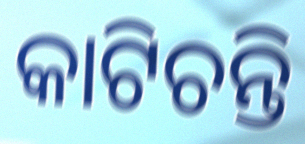
କାଟିଚନ୍ତି